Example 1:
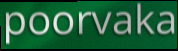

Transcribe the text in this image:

poorvaka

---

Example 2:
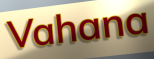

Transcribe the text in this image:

Vahana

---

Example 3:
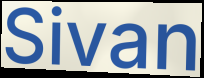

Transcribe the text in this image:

Sivan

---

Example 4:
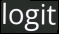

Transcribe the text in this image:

logit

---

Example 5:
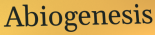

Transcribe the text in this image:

Abiogenesis